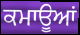
ਕਮਾਊਆਂ